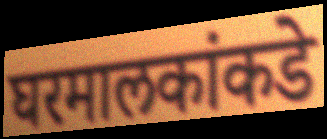
घरमालकांकडे